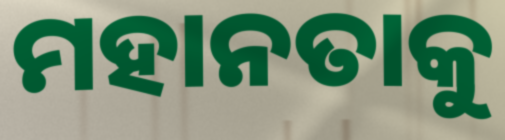
ମହାନତାକୁ